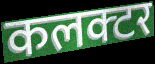
कलक्‍टर